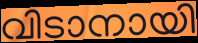
വിടാനായി